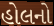
હોલનો